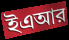
ইএআর